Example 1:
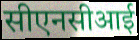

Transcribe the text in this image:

सीएनसीआई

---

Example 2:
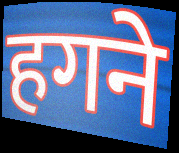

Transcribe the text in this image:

हगने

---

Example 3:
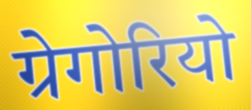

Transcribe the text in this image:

ग्रेगोरियो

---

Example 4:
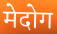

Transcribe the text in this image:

मेदोग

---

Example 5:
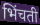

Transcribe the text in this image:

भिंचती